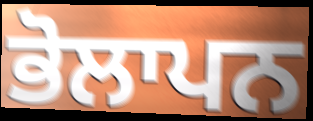
ਭੋਲਾਪਨ